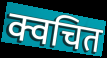
क्वचित